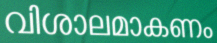
വിശാലമാകണം